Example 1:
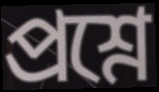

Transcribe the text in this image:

প্ৰশ্নে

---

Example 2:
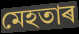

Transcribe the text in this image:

মেহতাৰ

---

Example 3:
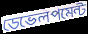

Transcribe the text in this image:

ডেভেলপমেন্ট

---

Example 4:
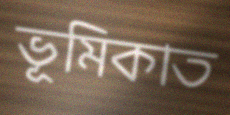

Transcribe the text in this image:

ভূমিকাত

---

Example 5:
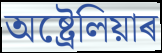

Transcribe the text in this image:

অষ্ট্ৰেলিয়াৰ